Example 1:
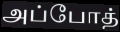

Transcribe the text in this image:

அப்போத்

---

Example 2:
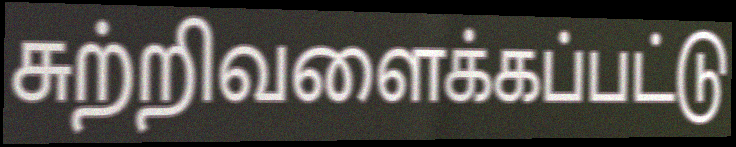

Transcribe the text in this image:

சுற்றிவளைக்கப்பட்டு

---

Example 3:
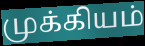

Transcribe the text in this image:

முக்கியம்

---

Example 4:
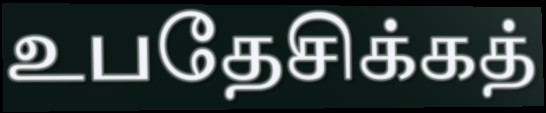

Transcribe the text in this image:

உபதேசிக்கத்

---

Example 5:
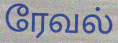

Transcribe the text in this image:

ரேவல்